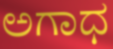
ಅಗಾಧ